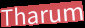
Tharum